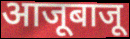
आजूबाजू